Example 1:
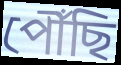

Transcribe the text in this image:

পৌঁছি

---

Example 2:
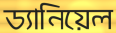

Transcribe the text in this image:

ড্যানিয়েল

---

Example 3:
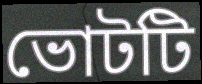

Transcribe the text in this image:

ভোটটি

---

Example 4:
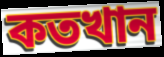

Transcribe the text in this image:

কতখান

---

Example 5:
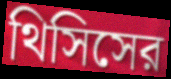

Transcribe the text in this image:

থিসিসের